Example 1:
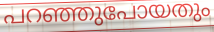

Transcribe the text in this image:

പറഞ്ഞുപോയതും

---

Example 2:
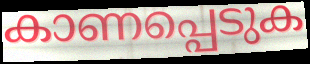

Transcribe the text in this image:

കാണപ്പെടുക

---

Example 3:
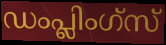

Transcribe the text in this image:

ഡംപ്ലിംഗ്സ്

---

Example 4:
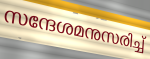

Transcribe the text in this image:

സന്ദേശമനുസരിച്ച്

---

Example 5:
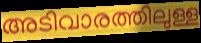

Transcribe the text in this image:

അടിവാരത്തിലുള്ള